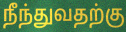
நீந்துவதற்கு